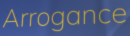
Arrogance